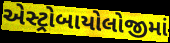
એસ્ટ્રોબાયોલોજીમાં